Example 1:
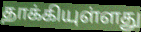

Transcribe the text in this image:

தாக்கியுள்ளது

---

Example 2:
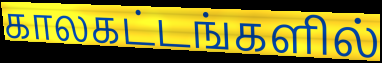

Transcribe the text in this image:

காலகட்டங்களில்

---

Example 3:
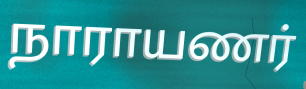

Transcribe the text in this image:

நாராயணர்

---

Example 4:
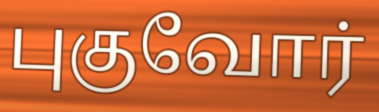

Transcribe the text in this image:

புகுவோர்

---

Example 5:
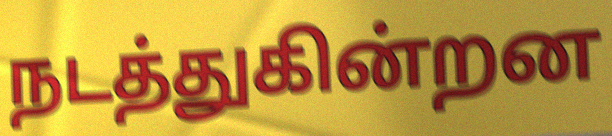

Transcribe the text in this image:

நடத்துகின்றன